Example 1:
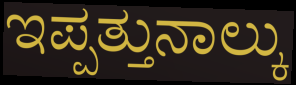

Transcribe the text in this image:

ಇಪ್ಪತ್ತುನಾಲ್ಕು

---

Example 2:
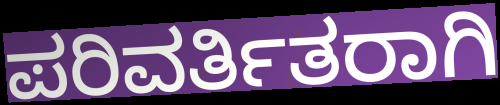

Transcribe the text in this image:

ಪರಿವರ್ತಿತರಾಗಿ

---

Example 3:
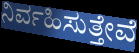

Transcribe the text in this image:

ನಿರ್ವಹಿಸುತ್ತೇವೆ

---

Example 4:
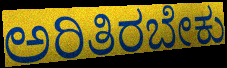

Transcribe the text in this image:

ಅರಿತಿರಬೇಕು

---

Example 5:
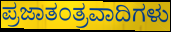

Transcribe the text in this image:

ಪ್ರಜಾತಂತ್ರವಾದಿಗಳು